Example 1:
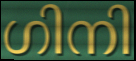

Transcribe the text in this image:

ഗിനി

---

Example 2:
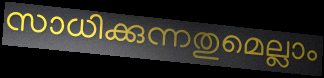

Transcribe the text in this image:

സാധിക്കുന്നതുമെല്ലാം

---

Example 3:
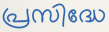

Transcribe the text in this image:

പ്രസിദ്ധേ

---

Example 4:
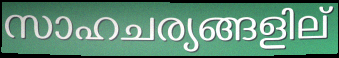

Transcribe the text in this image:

സാഹചര്യങ്ങളില്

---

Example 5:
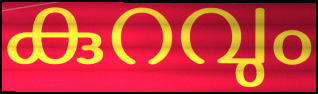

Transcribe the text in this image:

കുറവും